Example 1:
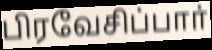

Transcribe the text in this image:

பிரவேசிப்பார்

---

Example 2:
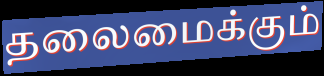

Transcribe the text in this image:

தலைமைக்கும்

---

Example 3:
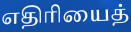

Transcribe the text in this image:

எதிரியைத்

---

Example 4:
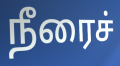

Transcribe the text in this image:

நீரைச்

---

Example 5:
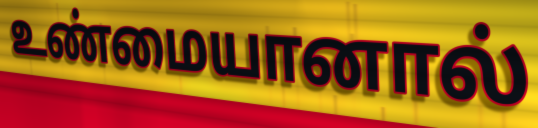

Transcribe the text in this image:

உண்மையானால்